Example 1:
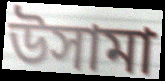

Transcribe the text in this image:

উসামা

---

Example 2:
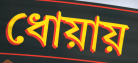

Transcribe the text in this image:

ধোয়ায়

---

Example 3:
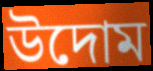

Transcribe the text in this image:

উদোম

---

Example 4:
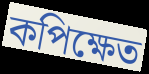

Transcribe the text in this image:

কপিক্ষেত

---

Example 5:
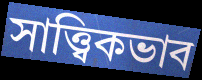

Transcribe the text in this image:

সাত্ত্বিকভাব